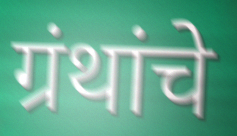
ग्रंथांचे